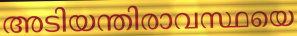
അടിയന്തിരാവസ്ഥയെ